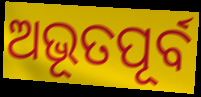
ଅଭୂତପୂର୍ବ